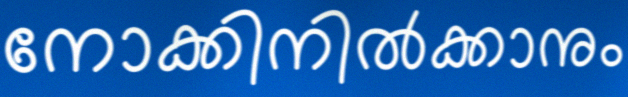
നോക്കിനിൽക്കാനും